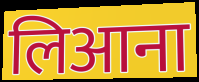
लिआना